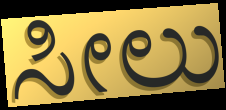
ಸೀಲು